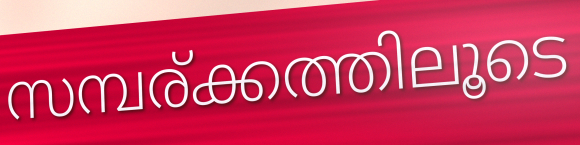
സമ്പര്ക്കത്തിലൂടെ